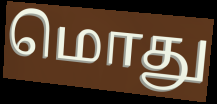
மொது